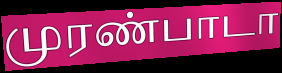
முரண்பாடா